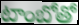
టాంబోతో